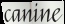
canine